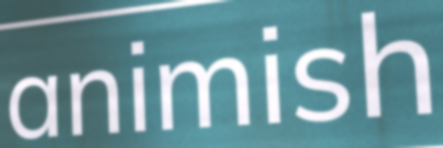
animish